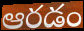
ఆరడం